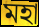
মহা